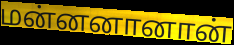
மன்னனானான்